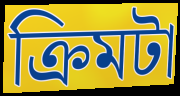
ক্রিমটা